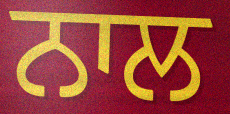
ਨਾਲ